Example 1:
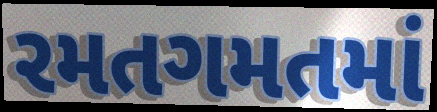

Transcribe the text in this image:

રમતગમતમાં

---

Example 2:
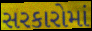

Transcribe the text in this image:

સરકારોમાં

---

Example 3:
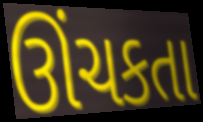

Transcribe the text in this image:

ઊંચકતા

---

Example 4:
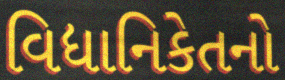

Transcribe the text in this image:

વિદ્યાનિકેતનો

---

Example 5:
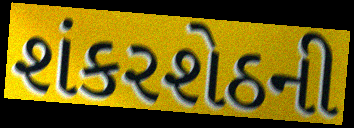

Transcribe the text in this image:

શંકરશેઠની